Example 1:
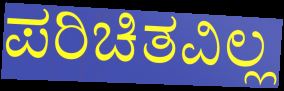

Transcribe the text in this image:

ಪರಿಚಿತವಿಲ್ಲ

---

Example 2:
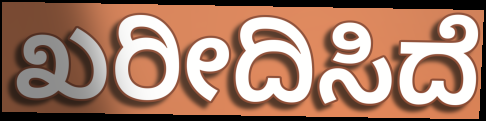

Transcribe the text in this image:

ಖರೀದಿಸಿದೆ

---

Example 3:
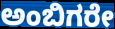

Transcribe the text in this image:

ಅಂಬಿಗರೇ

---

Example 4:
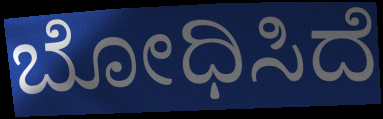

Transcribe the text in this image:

ಬೋಧಿಸಿದೆ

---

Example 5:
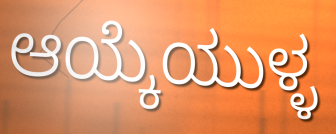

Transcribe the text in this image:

ಆಯ್ಕೆಯುಳ್ಳ